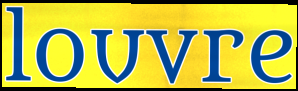
louvre